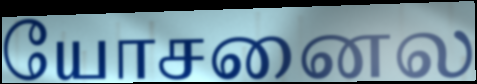
யோசனைல